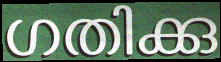
ഗതിക്കു